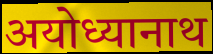
अयोध्यानाथ